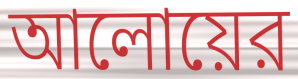
আলোয়ের